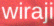
wiraji